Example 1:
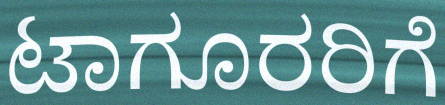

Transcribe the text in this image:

ಟಾಗೂರರಿಗೆ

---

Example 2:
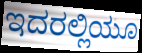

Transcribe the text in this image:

ಇದರಲ್ಲಿಯೂ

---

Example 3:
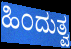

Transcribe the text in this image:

ಹಿಂದುತ್ವ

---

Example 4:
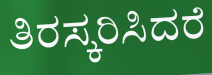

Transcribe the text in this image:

ತಿರಸ್ಕರಿಸಿದರೆ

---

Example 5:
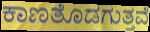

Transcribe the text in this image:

ಕಾಣತೊಡಗುತ್ತವೆ